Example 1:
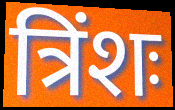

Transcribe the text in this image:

त्रिंशः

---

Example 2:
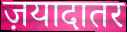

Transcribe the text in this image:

ज़यादातर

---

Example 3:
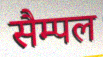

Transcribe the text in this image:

सैम्पल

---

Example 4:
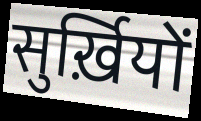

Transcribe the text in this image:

सुर्ख़ियों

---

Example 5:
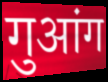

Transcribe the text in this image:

गुआंग